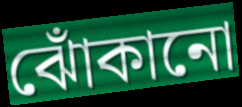
ঝোঁকানো